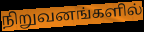
நிறுவனங்களில்